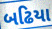
બઢિયા